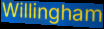
Willingham